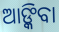
ଆଙ୍କିବା